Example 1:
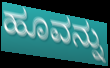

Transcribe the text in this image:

ಹೂವನ್ನು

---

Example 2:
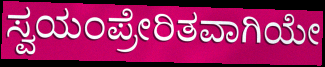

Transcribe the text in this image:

ಸ್ವಯಂಪ್ರೇರಿತವಾಗಿಯೇ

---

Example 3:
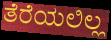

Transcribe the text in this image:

ತೆರೆಯಲಿಲ್ಲ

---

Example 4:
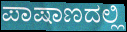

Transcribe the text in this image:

ಪಾಷಾಣದಲ್ಲಿ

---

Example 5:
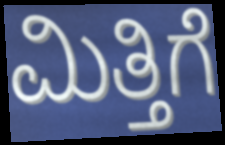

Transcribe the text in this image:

ಮಿತ್ತಿಗೆ